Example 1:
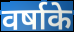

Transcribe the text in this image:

वर्षाके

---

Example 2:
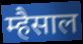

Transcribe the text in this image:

म्हैसाल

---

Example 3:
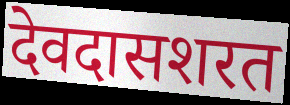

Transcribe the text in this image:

देवदासशरत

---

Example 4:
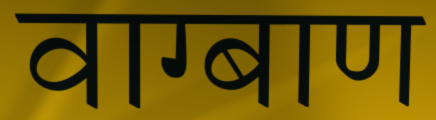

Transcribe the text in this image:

वाग्बाण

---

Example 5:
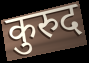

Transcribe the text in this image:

कुरुद